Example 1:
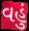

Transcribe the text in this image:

વહું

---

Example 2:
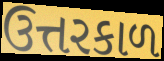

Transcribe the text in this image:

ઉત્તરકાળ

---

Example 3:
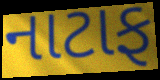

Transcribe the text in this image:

નાટાફ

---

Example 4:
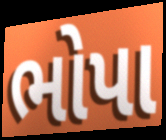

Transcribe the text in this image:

ભોપા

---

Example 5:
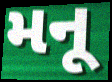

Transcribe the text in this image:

મનૂ